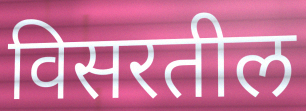
विसरतील